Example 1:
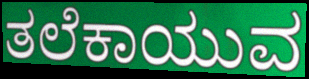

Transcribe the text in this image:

ತಲೆಕಾಯುವ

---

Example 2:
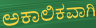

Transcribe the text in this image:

ಅಕಾಲಿಕವಾಗಿ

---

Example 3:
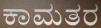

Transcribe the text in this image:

ಕಾಮತರ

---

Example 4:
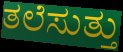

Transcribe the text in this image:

ತಲೆಸುತ್ತು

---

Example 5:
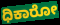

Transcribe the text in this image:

ಧಿಕಾರೋ